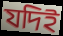
যদিই